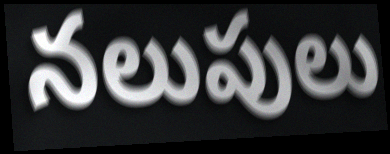
నలుపులు